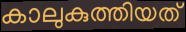
കാലുകുത്തിയത്